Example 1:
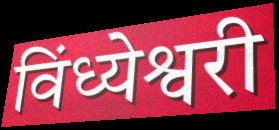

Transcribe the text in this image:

विंध्येश्वरी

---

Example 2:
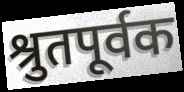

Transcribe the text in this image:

श्रुतपूर्वक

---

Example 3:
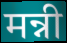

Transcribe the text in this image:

मन्नी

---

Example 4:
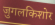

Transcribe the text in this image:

जुगलकिशोर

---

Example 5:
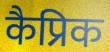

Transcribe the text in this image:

कैप्रिक